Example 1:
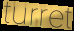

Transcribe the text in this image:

turret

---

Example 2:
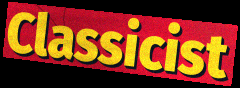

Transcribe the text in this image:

Classicist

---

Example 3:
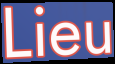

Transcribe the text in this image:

Lieu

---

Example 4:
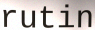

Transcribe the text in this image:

rutin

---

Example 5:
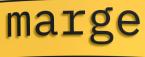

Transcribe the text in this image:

marge